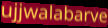
ujjwalabarve